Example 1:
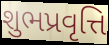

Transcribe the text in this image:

શુભપ્રવૃત્તિ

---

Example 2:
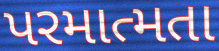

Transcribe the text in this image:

પરમાત્મતા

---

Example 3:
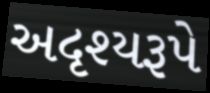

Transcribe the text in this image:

અદૃશ્યરૂપે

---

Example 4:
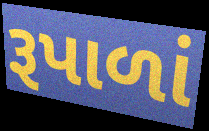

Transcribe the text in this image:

રૂપાળાં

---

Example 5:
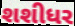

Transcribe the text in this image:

શશીધર